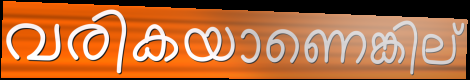
വരികയാണെങ്കില്